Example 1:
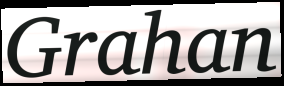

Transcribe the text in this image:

Grahan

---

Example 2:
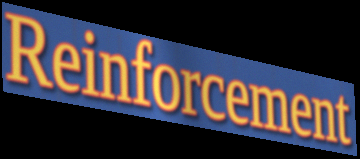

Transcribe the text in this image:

Reinforcement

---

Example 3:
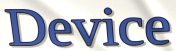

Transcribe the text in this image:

Device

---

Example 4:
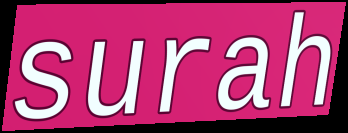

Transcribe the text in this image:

surah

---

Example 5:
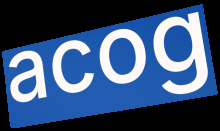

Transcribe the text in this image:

acog